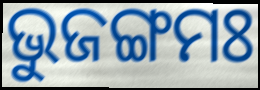
ଭୁଜଙ୍ଗମଃ